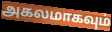
அகலமாகவும்